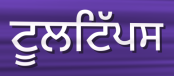
ਟੂਲਟਿੱਪਸ